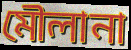
মৌলানা